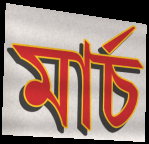
মাৰ্চ